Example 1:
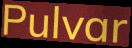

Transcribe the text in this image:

Pulvar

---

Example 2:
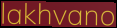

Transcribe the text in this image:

lakhvano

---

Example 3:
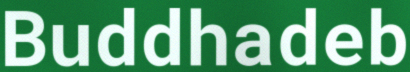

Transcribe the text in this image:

Buddhadeb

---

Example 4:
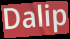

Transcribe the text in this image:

Dalip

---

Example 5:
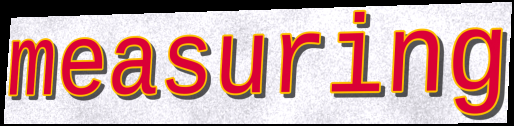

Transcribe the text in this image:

measuring